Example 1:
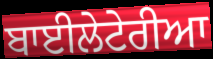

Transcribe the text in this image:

ਬਾਈਲੇਟੇਰੀਆ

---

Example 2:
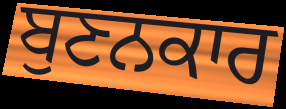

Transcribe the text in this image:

ਬੁਣਨਕਾਰ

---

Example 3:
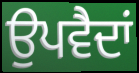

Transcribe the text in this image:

ਉਪਵੈਦਾਂ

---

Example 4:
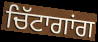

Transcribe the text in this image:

ਚਿੱਟਾਗਾਂਗ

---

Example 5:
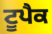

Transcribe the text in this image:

ਟੂਪੈਕ